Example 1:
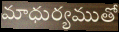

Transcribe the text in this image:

మాధుర్యముతో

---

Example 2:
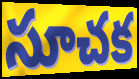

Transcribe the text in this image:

సూచక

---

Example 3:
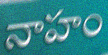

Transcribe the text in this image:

నాహం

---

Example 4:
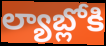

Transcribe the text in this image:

ల్యాబ్లోకి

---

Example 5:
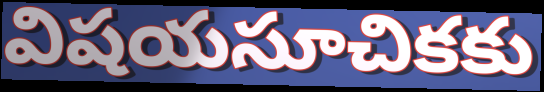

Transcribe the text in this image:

విషయసూచికకు